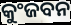
କୁଂଜବନ